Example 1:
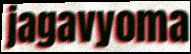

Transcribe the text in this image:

jagavyoma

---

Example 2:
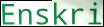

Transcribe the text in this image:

Enskri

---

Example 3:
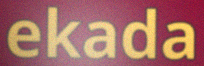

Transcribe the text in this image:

ekada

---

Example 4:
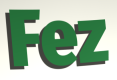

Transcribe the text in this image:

Fez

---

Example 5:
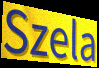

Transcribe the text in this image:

Szela